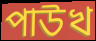
পাউখ